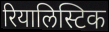
रियालिस्टिक